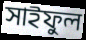
সাইফুল